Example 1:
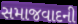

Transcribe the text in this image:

સમાજવાદની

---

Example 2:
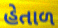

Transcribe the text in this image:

હેતાળ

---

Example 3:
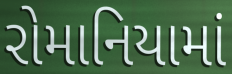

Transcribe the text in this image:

રોમાનિયામાં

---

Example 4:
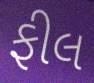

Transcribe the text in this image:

ફીલ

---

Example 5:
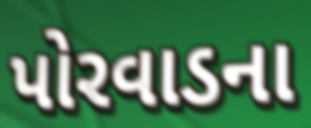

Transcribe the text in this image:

પોરવાડના